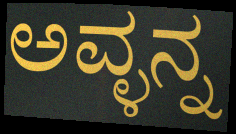
ಅವ್ಳನ್ನ